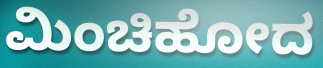
ಮಿಂಚಿಹೋದ